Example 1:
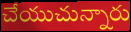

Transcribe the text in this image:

చేయుచున్నారు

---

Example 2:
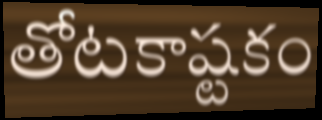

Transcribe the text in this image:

తోటకాష్టకం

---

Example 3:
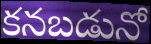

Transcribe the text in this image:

కనబడునో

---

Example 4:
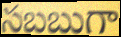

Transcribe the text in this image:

సబబుగా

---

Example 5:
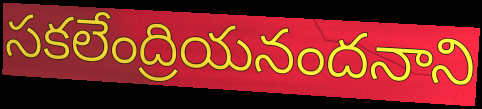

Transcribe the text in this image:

సకలేంద్రియనందనాని